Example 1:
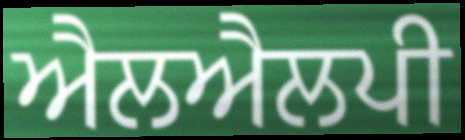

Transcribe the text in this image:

ਐਲਐਲਪੀ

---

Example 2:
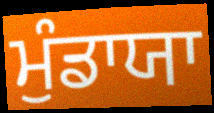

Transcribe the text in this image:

ਮੁੰਡਾਯਾ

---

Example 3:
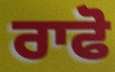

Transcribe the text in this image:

ਰਾਫੋ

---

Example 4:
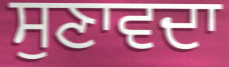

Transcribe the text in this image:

ਸੁਣਾਵਦਾ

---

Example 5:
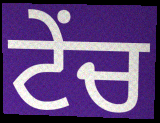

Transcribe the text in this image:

ਟੇਂਚ